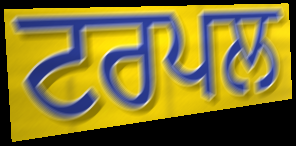
ਟਰਪਲ